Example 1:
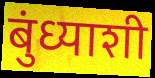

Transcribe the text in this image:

बुंध्याशी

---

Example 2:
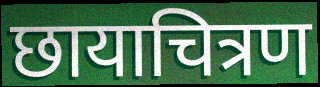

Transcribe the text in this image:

छायाचित्रण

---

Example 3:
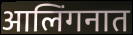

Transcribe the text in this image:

आलिंगनात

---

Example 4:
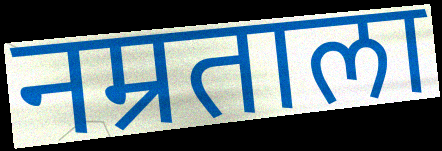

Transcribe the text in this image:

नम्रताला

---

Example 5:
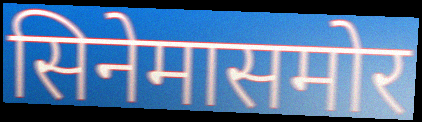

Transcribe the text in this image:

सिनेमासमोर